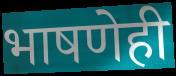
भाषणेही